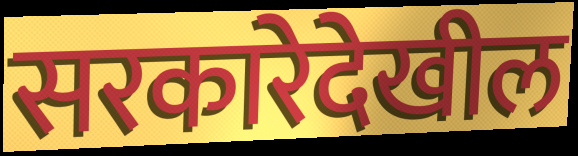
सरकारेदेखील